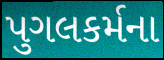
પુગલકર્મના